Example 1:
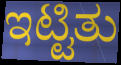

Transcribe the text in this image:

ಇಟ್ಟಿತು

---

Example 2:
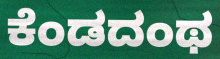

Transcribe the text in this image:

ಕೆಂಡದಂಥ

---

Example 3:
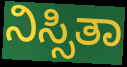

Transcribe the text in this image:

ನಿಸ್ಸಿತಾ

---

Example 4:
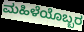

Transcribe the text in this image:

ಮಹಿಳೆಯೊಬ್ಬರ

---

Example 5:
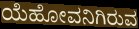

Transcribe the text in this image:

ಯೆಹೋವನಿಗಿರುವ